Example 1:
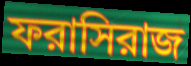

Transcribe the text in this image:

ফরাসিরাজ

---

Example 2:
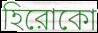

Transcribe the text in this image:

হিরোকো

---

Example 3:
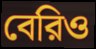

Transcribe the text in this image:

বেরিও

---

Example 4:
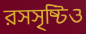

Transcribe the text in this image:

রসসৃষ্টিও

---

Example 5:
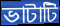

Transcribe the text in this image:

ভাটাটি